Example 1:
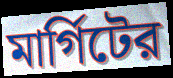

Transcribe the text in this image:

মার্গিটের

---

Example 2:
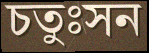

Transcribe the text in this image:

চতুঃসন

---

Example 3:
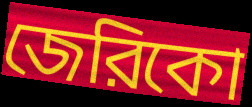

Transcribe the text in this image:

জেরিকো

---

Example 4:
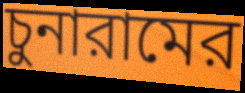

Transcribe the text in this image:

চুনারামের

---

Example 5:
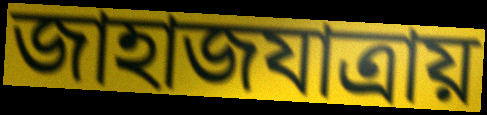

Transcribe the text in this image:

জাহাজযাত্রায়